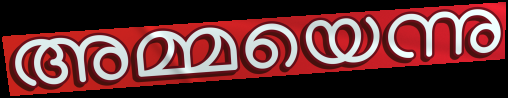
അമ്മയെന്നു